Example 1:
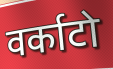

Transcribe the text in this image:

वर्काटो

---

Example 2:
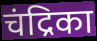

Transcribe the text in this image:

चंद्रिका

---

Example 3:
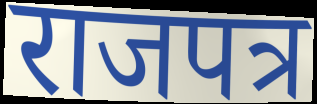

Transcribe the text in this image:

राजपत्र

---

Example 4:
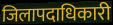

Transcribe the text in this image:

जिलापदाधिकारी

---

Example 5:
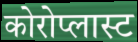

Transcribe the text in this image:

कोरोप्लास्ट